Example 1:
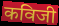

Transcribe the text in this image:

कविजी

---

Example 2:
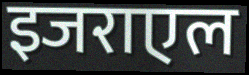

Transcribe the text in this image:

इजराएल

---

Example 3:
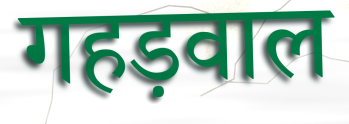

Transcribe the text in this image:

गहड़वाल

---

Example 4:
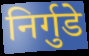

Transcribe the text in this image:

निर्गुडे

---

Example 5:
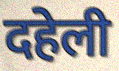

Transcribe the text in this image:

दहेली